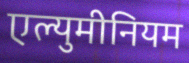
एल्युमीनियम